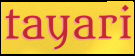
tayari